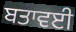
ਬਤਾਵਈ